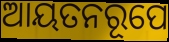
ଆୟତନରୂପେ